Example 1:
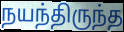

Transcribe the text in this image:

நயந்திருந்த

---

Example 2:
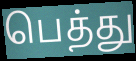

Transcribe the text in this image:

பெத்து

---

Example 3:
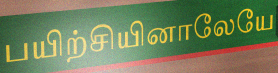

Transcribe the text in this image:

பயிற்சியினாலேயே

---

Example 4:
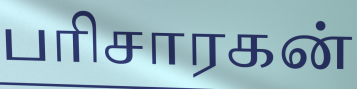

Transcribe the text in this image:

பரிசாரகன்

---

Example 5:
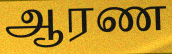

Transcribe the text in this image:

ஆரண